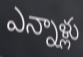
ఎన్నాళ్లు